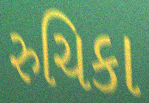
રુચિકા